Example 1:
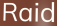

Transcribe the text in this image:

Raid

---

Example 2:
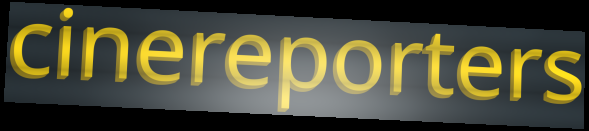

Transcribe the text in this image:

cinereporters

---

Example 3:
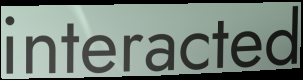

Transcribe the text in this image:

interacted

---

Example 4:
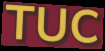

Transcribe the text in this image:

TUC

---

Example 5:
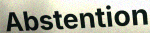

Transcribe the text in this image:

Abstention